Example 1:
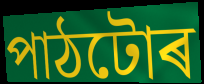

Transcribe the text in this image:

পাঠটোৰ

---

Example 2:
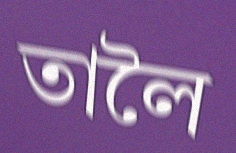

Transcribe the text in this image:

তালৈ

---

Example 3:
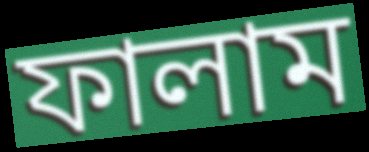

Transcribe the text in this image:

ফালাম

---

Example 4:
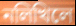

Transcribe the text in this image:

নলিখিলে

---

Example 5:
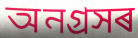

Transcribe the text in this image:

অনগ্ৰসৰ